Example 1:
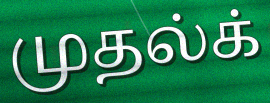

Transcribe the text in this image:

முதல்க்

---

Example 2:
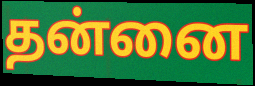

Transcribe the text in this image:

தன்னை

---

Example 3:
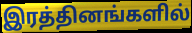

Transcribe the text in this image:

இரத்தினங்களில்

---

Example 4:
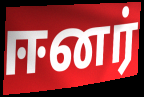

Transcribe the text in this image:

ஈனர்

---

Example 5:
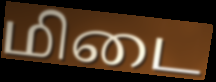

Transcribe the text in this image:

மிடை